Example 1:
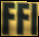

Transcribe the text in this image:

FFI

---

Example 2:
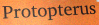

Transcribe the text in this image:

Protopterus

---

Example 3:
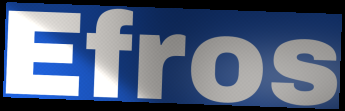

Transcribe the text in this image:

Efros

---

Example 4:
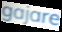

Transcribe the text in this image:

gajare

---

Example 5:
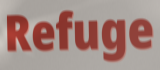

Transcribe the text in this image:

Refuge